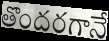
తొందరగానే